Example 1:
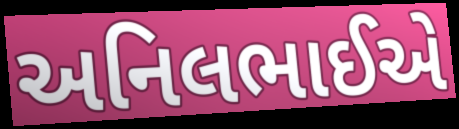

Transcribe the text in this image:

અનિલભાઈએ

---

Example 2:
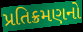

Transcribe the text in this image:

પ્રતિક્રમણનો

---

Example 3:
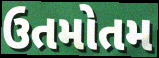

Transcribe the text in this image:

ઉતમોતમ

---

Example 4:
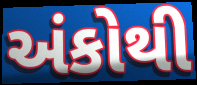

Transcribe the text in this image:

અંકોથી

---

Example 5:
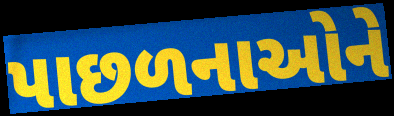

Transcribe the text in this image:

પાછળનાઓને